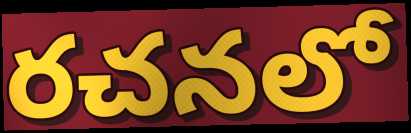
రచనలో